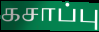
கசாப்பு